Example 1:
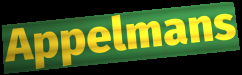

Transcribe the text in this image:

Appelmans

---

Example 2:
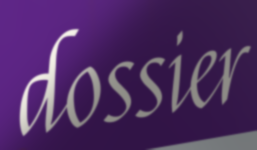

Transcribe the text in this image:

dossier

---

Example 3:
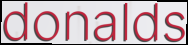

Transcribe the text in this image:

donalds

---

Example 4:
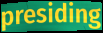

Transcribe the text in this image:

presiding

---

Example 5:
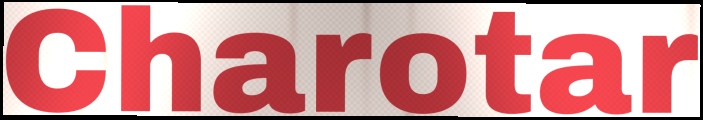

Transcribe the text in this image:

Charotar